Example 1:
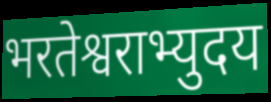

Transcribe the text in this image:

भरतेश्वराभ्युदय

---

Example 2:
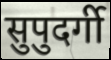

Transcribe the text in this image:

सुपुदर्गी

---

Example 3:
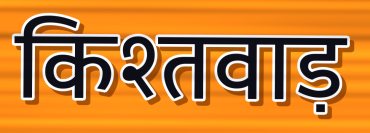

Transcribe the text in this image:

किश्तवाड़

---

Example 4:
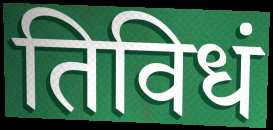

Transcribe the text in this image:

तिविधं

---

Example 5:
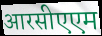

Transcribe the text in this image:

आरसीएएम